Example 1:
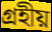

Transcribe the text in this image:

গ্রহীয়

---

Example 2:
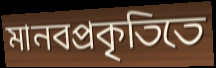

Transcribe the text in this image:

মানবপ্রকৃতিতে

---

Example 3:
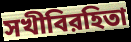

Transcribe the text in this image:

সখীবিরহিতা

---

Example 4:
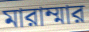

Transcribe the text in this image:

মারাম্মার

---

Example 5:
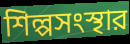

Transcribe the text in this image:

শিল্পসংস্থার